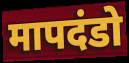
मापदंडो